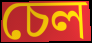
চেল